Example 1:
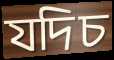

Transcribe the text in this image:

যদিচ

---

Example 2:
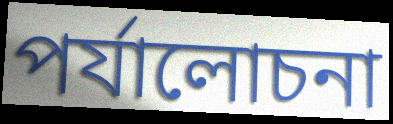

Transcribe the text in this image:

পর্যালোচনা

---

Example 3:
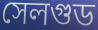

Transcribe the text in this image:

সেলগুড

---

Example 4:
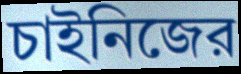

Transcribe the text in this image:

চাইনিজের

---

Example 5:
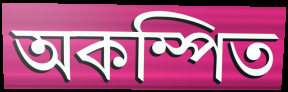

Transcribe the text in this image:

অকম্পিত